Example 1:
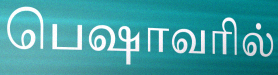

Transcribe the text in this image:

பெஷாவரில்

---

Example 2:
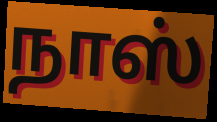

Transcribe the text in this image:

நாஸ்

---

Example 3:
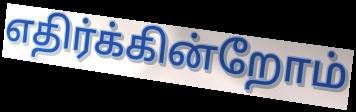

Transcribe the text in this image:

எதிர்க்கின்றோம்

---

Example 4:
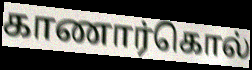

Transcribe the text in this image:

காணார்கொல்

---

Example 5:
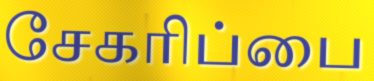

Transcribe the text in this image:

சேகரிப்பை